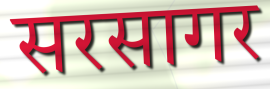
सरसागर